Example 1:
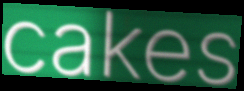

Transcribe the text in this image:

cakes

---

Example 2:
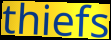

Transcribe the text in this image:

thiefs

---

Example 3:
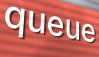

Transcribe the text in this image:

queue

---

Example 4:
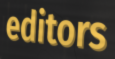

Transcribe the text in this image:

editors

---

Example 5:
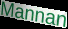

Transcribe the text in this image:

Mannan